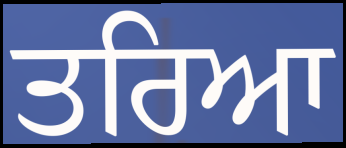
ਤਰਿਆ